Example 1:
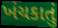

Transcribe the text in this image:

ખંચકાતું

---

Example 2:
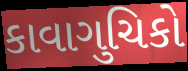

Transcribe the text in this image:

કાવાગુચિકો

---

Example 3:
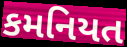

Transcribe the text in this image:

કમનિયત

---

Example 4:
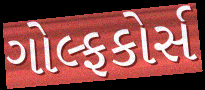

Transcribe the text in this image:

ગોલ્ફકોર્સ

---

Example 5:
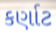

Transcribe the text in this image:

કર્ણાટ